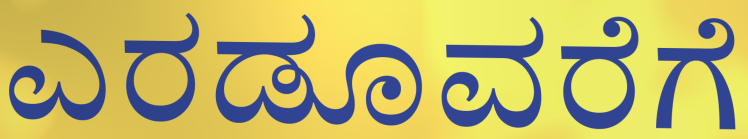
ಎರಡೂವರೆಗೆ